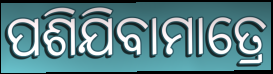
ପଶିଯିବାମାତ୍ରେ